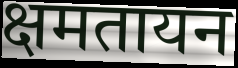
क्षमतायन